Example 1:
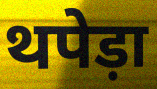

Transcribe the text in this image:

थपेड़ा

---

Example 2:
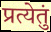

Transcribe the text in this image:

प्रत्येतुं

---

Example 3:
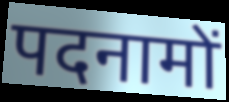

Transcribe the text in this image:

पदनामों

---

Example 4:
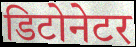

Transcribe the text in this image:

डिटोनेटर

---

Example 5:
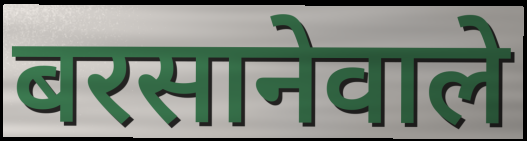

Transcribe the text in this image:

बरसानेवाले